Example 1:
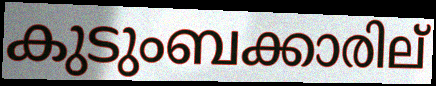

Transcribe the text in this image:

കുടുംബക്കാരില്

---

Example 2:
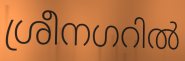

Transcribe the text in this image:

ശ്രീനഗറിൽ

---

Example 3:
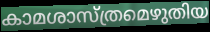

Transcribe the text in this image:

കാമശാസ്ത്രമെഴുതിയ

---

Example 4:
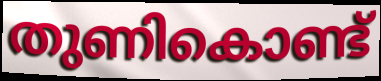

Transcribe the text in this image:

തുണികൊണ്ട്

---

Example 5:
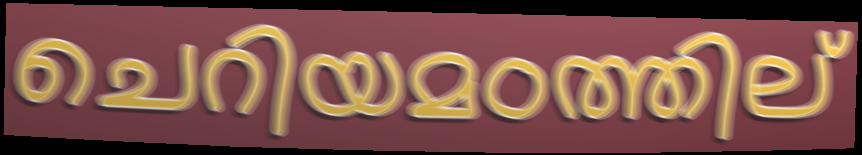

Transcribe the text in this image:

ചെറിയമഠത്തില്